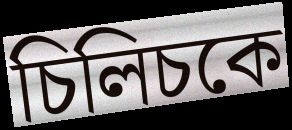
চিলিচকে